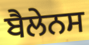
ਬੈਲੇਨਸ